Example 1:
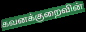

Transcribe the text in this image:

கவனக்குறைவின்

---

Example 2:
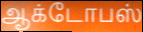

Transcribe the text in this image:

ஆக்டோபஸ்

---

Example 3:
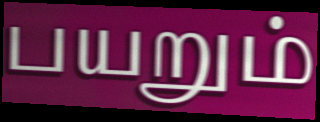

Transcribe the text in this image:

பயறும்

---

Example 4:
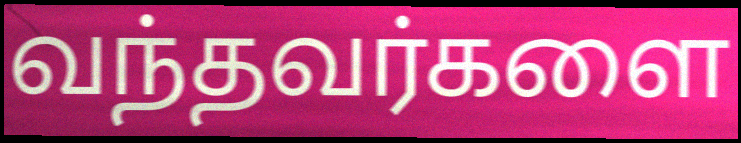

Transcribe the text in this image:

வந்தவர்களை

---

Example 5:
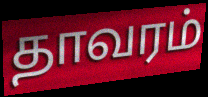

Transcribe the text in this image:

தாவரம்